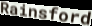
Rainsford